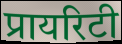
प्रायरिटी